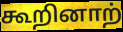
கூறினாற்